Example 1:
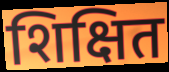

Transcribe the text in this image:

शिक्षित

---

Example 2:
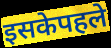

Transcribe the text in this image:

इसकेपहले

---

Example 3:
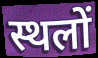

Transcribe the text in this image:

स्थलों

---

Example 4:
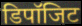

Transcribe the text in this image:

डिपॉजिट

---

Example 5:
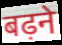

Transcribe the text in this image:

बढ़ने